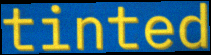
tinted